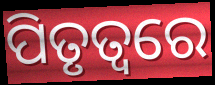
ପିତୃତ୍ୱରେ